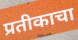
प्रतीकाचा